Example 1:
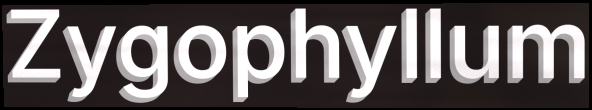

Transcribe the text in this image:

Zygophyllum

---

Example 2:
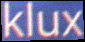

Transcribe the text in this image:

klux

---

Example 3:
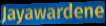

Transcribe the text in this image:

Jayawardene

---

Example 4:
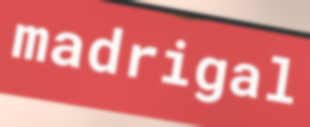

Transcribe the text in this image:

madrigal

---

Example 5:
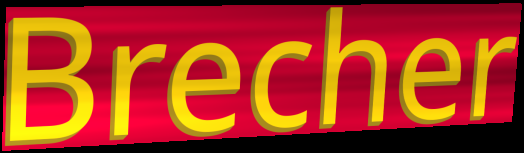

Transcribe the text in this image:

Brecher